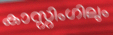
കാസ്റ്റിംഗിലും